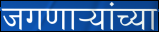
जगणाऱ्यांच्या